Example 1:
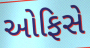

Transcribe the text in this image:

ઓફિસે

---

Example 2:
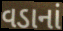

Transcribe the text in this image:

વડાનાં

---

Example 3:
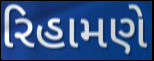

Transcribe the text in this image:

રિહામણે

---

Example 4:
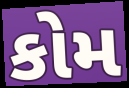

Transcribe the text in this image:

કોમ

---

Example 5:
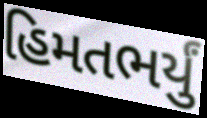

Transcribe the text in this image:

હિમતભર્યું